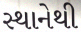
સ્થાનેથી